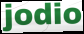
jodio